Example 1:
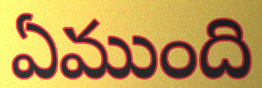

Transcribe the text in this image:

ఏముంది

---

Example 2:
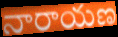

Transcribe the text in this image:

నారాయణ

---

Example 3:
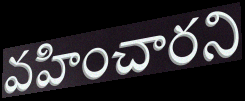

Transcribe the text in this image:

వహించారని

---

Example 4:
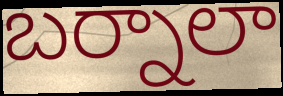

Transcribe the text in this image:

బర్నాలా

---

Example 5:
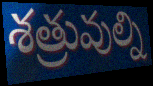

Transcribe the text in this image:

శత్రువుల్ని